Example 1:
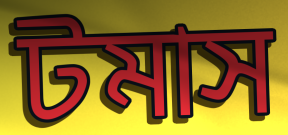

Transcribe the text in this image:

টমাস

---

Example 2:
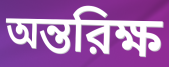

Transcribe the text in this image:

অন্তরিক্ষ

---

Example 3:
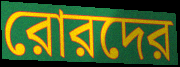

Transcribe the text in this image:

রোরদের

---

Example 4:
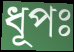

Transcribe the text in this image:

ধূপঃ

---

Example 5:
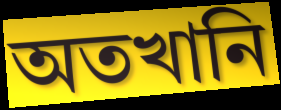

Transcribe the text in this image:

অতখানি